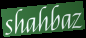
shahbaz